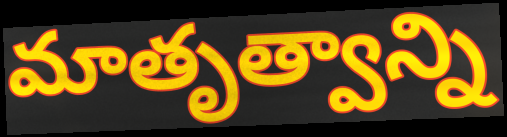
మాతృత్వాన్ని